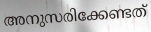
അനുസരിക്കേണ്ടത്